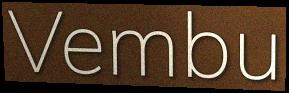
Vembu